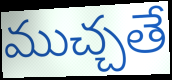
ముచ్చతే